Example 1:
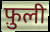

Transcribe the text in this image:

फ़ुली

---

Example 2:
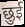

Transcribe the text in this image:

छुई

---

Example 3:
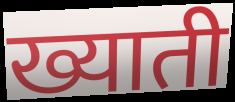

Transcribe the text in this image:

ख्याती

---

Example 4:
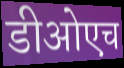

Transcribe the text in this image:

डीओएच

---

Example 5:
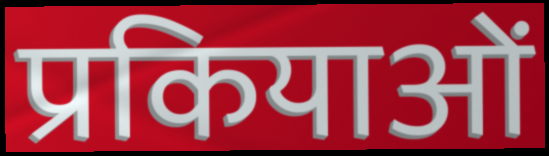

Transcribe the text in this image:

प्रकियाओं